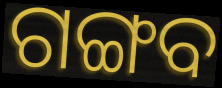
ଗଙ୍ଗବ